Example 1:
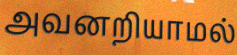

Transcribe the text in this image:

அவனறியாமல்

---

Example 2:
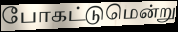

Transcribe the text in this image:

போகட்டுமென்று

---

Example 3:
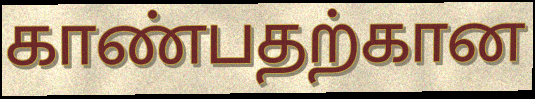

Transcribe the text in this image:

காண்பதற்கான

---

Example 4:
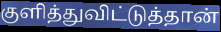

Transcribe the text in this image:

குளித்துவிட்டுத்தான்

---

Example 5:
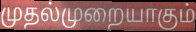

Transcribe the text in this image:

முதல்முறையாகும்